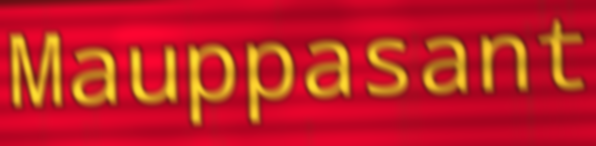
Mauppasant